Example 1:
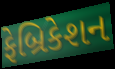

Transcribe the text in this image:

ફેબ્રિકેશન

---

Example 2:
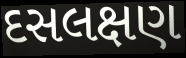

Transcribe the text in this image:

દસલક્ષણ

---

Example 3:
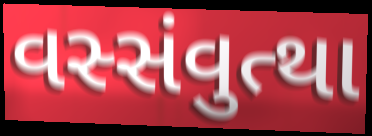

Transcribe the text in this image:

વસ્સંવુત્થા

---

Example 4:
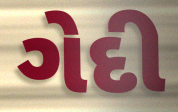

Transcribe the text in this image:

ગેદી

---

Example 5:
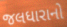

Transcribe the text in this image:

જલધારાનો